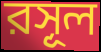
রসূল